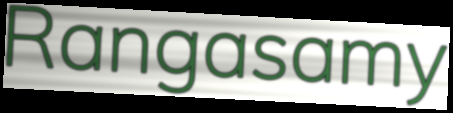
Rangasamy